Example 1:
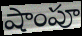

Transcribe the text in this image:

షాంపూ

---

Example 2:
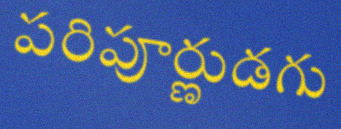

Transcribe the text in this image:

పరిపూర్ణుడగు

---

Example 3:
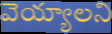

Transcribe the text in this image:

వెయ్యాలని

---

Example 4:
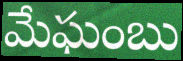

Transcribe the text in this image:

మేఘంబు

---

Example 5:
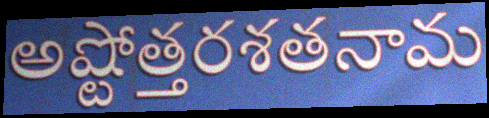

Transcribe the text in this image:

అష్టోత్తరశతనామ